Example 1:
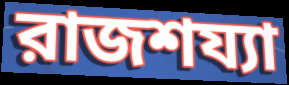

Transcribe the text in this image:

রাজশয্যা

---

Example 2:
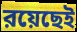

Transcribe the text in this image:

রয়েছেই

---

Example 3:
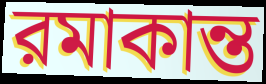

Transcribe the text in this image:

রমাকান্ত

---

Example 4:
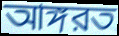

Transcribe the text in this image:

আঙ্গরত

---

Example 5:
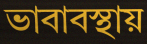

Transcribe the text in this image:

ভাবাবস্থায়